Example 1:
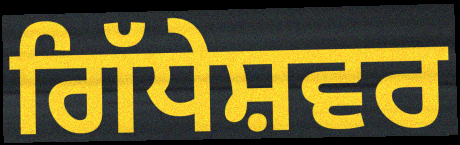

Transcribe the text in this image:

ਗਿੱਧੇਸ਼ਵਰ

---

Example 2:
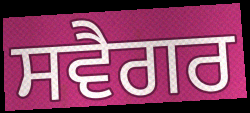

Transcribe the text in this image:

ਸਵੈਗਰ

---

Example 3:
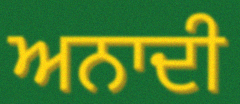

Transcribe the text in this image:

ਅਨਾਦੀ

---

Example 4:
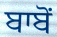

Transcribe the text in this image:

ਬਾਬੋਂ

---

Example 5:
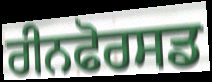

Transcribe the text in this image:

ਰੀਨਫੋਰਸਡ